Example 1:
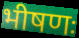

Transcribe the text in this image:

भीषणः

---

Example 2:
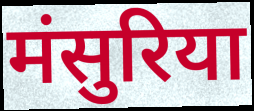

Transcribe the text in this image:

मंसुरिया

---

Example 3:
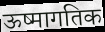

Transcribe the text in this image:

ऊष्मागतिक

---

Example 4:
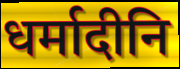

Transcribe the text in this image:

धर्मादीनि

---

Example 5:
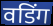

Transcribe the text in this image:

वडिंग